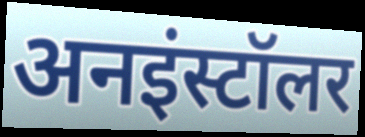
अनइंस्टॉलर